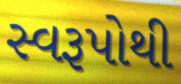
સ્વરૂપોથી